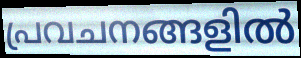
പ്രവചനങ്ങളിൽ